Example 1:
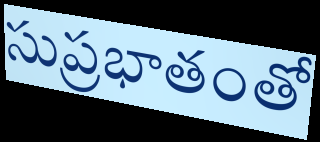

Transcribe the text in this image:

సుప్రభాతంతో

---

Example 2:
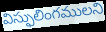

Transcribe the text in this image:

విస్ఫులింగములని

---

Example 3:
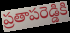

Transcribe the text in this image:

ప్రతాపరెడ్డికి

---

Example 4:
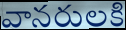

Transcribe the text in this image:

వానరులకి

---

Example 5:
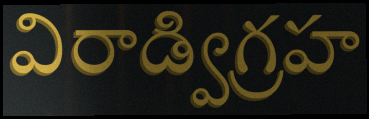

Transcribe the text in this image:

విరాడ్విగ్రహ